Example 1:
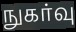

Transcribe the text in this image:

நுகர்வு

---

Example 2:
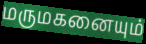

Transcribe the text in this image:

மருமகனையும்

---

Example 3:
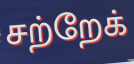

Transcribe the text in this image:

சற்றேக்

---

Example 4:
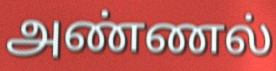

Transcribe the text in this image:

அண்ணல்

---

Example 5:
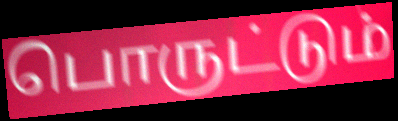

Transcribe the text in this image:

பொருட்டும்